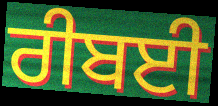
ਰੀਬਈ